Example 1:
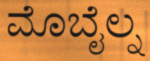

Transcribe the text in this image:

ಮೊಬೈಲ್ನ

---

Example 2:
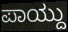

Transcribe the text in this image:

ಪಾಯ್ದು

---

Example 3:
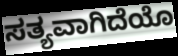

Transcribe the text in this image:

ಸತ್ಯವಾಗಿದೆಯೊ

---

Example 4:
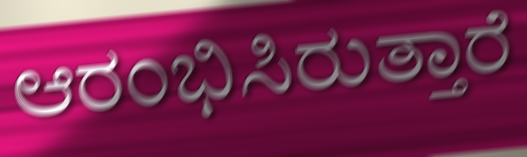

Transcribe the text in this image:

ಆರಂಭಿಸಿರುತ್ತಾರೆ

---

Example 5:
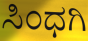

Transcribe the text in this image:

ಸಿಂಧಗಿ